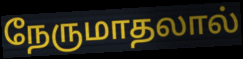
நேருமாதலால்